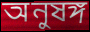
অনুষঙ্গ